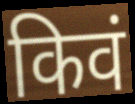
किवं